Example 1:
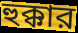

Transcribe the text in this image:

হুক্কার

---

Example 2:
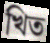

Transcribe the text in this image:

খিত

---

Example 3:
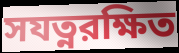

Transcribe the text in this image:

সযত্নরক্ষিত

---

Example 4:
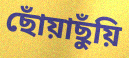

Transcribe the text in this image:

ছোঁয়াছুঁয়ি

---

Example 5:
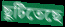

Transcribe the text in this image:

ছুটিতেছে